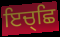
ਇਚ੍ਛਿ